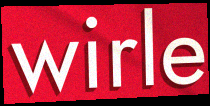
wirle